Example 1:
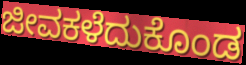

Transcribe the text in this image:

ಜೀವಕಳೆದುಕೊಂಡ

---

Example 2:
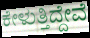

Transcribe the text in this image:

ಕೇಳುತ್ತಿದ್ದೇವೆ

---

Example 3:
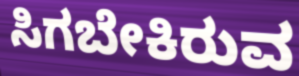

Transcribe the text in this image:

ಸಿಗಬೇಕಿರುವ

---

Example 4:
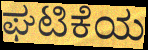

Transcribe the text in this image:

ಘಟಿಕೆಯ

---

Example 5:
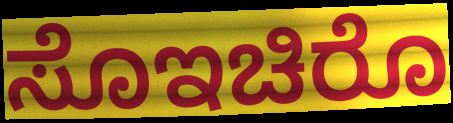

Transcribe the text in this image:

ಸೊಇಚಿರೊ